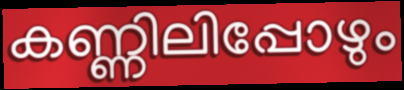
കണ്ണിലിപ്പോഴും